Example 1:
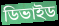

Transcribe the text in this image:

ডিভাইড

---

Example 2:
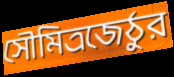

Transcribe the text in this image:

সৌমিত্রজেঠুর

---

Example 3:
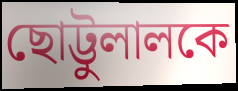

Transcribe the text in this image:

ছোট্টুলালকে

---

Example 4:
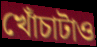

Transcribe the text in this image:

খোঁচাটাও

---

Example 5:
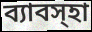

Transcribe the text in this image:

ব্যাবস্হা